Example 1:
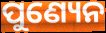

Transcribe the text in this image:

ପୁଣ୍ୟେନ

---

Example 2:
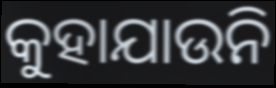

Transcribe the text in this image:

କୁହାଯାଉନି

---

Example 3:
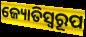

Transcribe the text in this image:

ଜ୍ୟୋତିସ୍ୱରୂପ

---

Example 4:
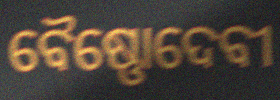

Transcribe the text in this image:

ବୈଷ୍ଣୋଦେବୀ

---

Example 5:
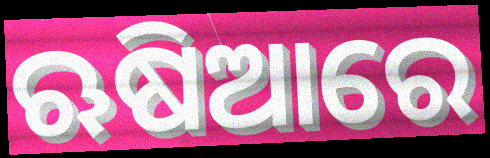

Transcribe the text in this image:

ଋଷିଆରେ